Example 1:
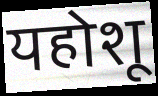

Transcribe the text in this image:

यहोशू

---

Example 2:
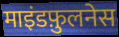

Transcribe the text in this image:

माइंडफ़ुलनेस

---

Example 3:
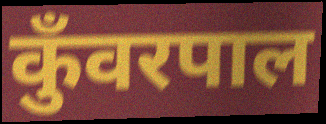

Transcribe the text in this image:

कुँवरपाल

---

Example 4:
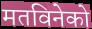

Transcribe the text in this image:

मतविनेको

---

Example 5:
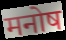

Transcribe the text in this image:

मनोष